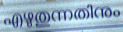
എഴുതുന്നതിനും